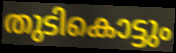
തുടികൊട്ടും